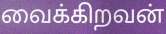
வைக்கிறவன்